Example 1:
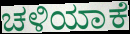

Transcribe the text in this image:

ಚಳಿಯಾಕೆ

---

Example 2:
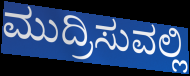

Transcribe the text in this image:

ಮುದ್ರಿಸುವಲ್ಲಿ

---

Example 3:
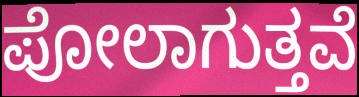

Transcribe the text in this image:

ಪೋಲಾಗುತ್ತವೆ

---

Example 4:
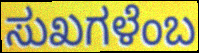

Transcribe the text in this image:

ಸುಖಗಳೆಂಬ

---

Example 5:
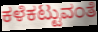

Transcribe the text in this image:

ಕಳೆಕಟ್ಟುವಂತೆ